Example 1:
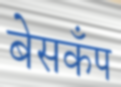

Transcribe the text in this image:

बेसकँप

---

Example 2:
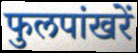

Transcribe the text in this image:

फुलपांखरें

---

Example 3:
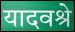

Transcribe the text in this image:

यादवश्रे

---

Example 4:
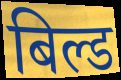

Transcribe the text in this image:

बिल्ड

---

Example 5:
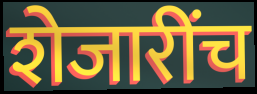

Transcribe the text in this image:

शेजारींच